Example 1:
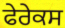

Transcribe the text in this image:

ਫੇਰੇਕਸ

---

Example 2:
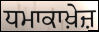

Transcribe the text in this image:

ਧਮਾਕਾਖ਼ੇਜ਼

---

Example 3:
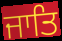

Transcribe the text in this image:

ਜਾਤਿ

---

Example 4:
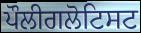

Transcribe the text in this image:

ਪੌਲੀਗਲੋਟਿਸਟ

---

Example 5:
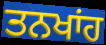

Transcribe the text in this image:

ਤਨਖਾਂਹ